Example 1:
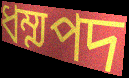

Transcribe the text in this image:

ধম্মপদ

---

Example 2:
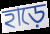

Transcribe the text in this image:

হাড়ে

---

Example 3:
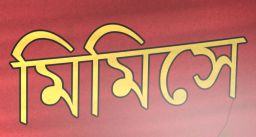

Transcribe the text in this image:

মিমিসে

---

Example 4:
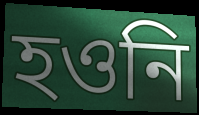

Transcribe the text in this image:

হওনি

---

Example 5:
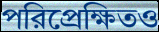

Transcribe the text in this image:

পরিপ্রেক্ষিতও